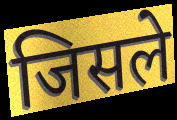
जिसले